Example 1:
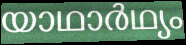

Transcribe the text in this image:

യാഥാർഥ്യം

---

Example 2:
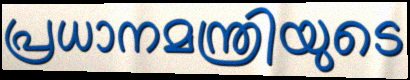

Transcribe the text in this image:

പ്രധാനമന്ത്രിയുടെ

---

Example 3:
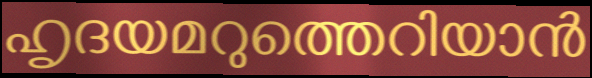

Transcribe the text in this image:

ഹൃദയമറുത്തെറിയാൻ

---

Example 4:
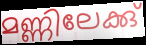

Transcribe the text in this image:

മണ്ണിലേക്കു്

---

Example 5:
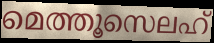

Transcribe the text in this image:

മെത്തൂസെലഹ്